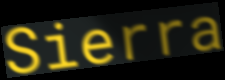
Sierra